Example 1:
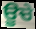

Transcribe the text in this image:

ਊਚੇ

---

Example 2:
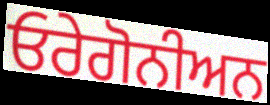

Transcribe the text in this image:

ਓਰੇਗੋਨੀਅਨ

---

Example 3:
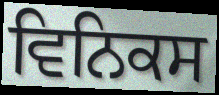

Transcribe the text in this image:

ਵਿਨਿਕਸ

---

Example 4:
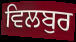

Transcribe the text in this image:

ਵਿਲਬੁਰ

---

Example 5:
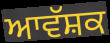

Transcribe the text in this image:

ਆਵੱਸ਼ਕ